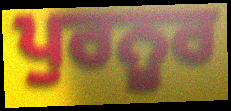
ਪੁਰਨੂਰ